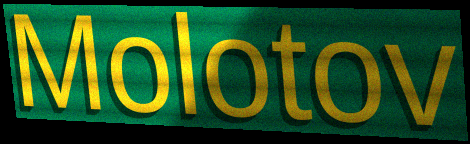
Molotov